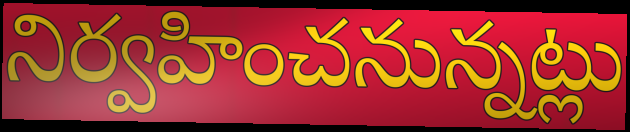
నిర్వహించనున్నట్లు